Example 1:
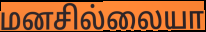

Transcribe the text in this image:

மனசில்லையா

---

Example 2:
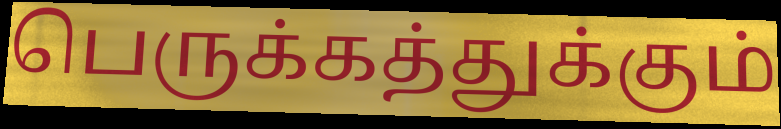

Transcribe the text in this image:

பெருக்கத்துக்கும்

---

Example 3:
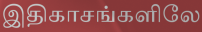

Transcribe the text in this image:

இதிகாசங்களிலே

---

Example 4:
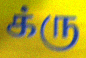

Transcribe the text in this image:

க்ரு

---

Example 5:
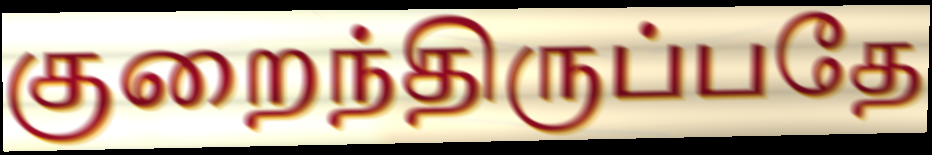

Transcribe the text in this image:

குறைந்திருப்பதே